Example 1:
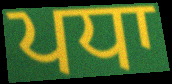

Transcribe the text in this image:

ਪਧਾ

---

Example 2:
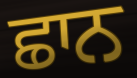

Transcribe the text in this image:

ਛਾਨ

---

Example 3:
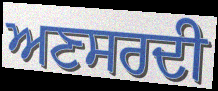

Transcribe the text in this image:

ਅਣਸਰਦੀ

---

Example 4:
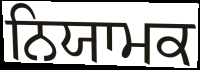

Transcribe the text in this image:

ਨਿਯਾਮਕ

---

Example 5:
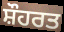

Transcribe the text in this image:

ਸ਼ੌਹਰਤ